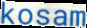
kosam